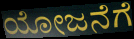
ಯೋಜನೆಗೆ